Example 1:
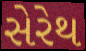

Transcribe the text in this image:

સેરેથ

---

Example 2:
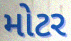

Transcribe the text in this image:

મોટર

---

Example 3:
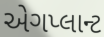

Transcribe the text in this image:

એગપ્લાન્ટ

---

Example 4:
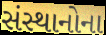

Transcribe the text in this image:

સંસ્થાનોના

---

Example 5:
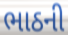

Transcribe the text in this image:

ભાઠની